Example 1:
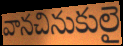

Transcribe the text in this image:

వానచినుకులై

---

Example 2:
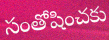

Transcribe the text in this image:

సంతోషించకు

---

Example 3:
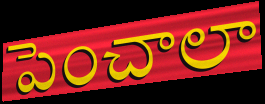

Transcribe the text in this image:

పెంచాలా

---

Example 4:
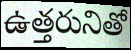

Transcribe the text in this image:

ఉత్తరునితో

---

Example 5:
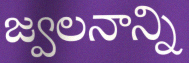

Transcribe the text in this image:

జ్వలనాన్ని